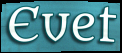
Euet